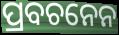
ପ୍ରବଚନେନ